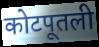
कोटपूतली